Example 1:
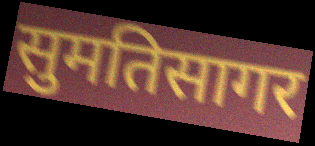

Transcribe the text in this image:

सुमतिसागर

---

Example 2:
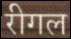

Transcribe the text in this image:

रीगल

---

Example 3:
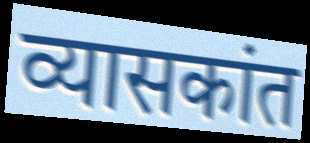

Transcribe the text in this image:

व्यासकांत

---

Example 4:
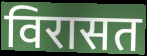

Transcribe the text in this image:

विरासत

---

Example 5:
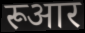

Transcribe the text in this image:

रूआर